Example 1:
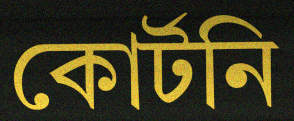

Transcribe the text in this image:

কোর্টনি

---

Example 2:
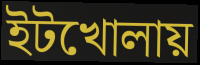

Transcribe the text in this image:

ইটখোলায়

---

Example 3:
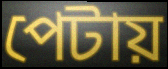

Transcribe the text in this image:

পেটায়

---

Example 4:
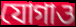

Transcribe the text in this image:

যোগাও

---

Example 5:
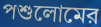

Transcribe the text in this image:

পশুলোমের